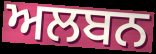
ਅਲਬਨ